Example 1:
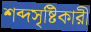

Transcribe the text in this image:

শব্দসৃষ্টিকারী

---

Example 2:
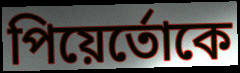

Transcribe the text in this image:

পিয়ের্তোকে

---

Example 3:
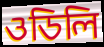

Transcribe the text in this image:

ওডিলি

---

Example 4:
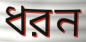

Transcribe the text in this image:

ধরন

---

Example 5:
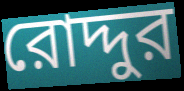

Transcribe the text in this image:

রোদ্দুর